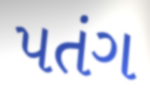
પતંગ